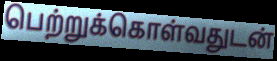
பெற்றுக்கொள்வதுடன்